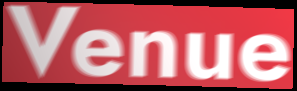
Venue